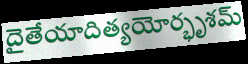
దైతేయాదిత్యయోర్భృశమ్